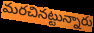
మరచినట్టున్నారు